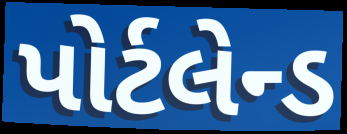
પોર્ટલેન્ડ